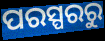
ପରସ୍ପରରୁ